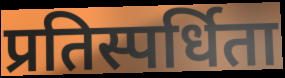
प्रतिस्पर्धिता